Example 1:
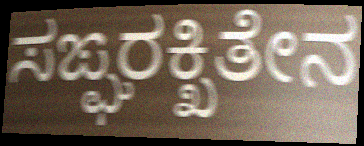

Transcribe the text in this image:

ಸಙ್ಘರಕ್ಖಿತೇನ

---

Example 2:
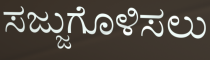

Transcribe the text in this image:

ಸಜ್ಜುಗೊಳಿಸಲು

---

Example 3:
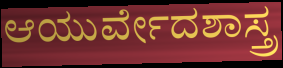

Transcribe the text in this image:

ಆಯುರ್ವೇದಶಾಸ್ತ್ರ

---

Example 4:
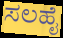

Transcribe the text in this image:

ಸಲಹೈ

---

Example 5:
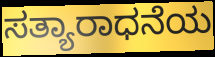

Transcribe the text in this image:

ಸತ್ಯಾರಾಧನೆಯ